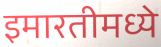
इमारतीमध्ये